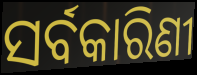
ସର୍ବକାରିଣୀ